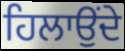
ਹਿਲਾਉਂਦੇ